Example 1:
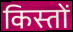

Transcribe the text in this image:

किस्तों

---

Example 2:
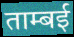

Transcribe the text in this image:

ताम्बई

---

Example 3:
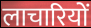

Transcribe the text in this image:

लाचारियों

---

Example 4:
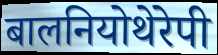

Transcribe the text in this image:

बालनियोथेरेपी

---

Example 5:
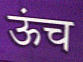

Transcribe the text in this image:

ऊंच